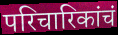
परिचारिकांचं